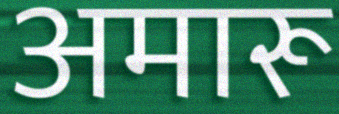
अमारू